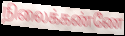
நிலைக்கண்ணே